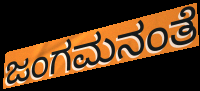
ಜಂಗಮನಂತೆ